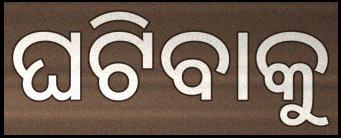
ଘଟିବାକୁ